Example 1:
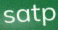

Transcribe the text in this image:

satp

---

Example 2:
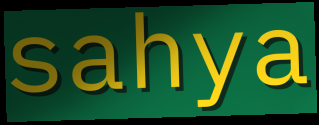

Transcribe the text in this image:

sahya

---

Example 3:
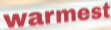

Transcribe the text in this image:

warmest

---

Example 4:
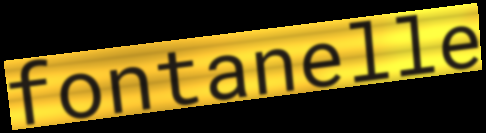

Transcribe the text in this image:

fontanelle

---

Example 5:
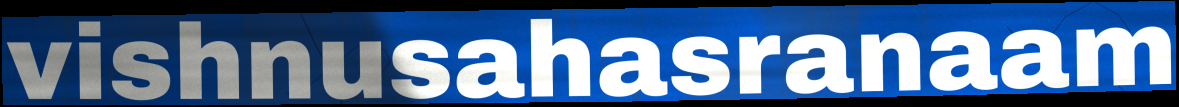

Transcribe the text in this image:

vishnusahasranaam